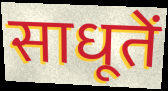
साधूतें